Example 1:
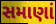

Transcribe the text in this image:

સમાણાં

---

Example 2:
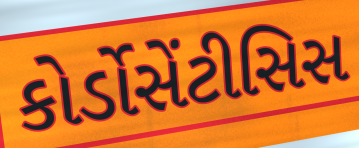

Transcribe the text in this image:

કોર્ડોસેંટીસિસ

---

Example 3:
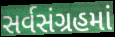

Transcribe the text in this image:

સર્વસંગ્રહમાં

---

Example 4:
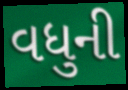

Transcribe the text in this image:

વધુની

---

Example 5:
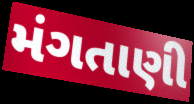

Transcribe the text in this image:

મંગતાણી